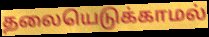
தலையெடுக்காமல்